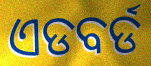
ଏଡବର୍ଡ